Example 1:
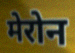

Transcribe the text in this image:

मेरोन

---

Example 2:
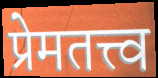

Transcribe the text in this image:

प्रेमतत्त्व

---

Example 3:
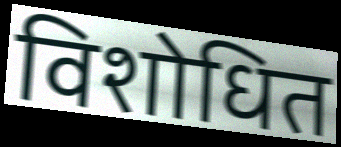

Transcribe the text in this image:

विशोधित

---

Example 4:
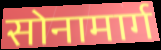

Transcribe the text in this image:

सोनामार्ग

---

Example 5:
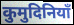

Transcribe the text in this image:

कुमुदिनियाँ